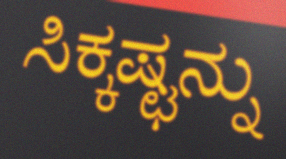
ಸಿಕ್ಕಷ್ಟನ್ನು